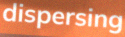
dispersing